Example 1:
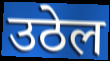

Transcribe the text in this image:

उठेल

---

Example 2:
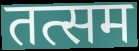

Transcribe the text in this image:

तत्सम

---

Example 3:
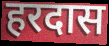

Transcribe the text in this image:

हरदास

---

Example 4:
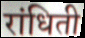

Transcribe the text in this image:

रांधिती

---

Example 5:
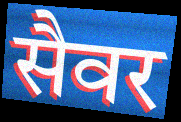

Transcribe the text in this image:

सैवर